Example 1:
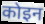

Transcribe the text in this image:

कोइन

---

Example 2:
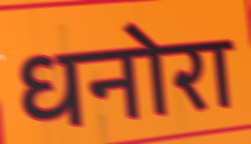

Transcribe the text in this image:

धनोरा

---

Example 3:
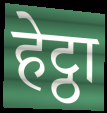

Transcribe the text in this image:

हेट्ठा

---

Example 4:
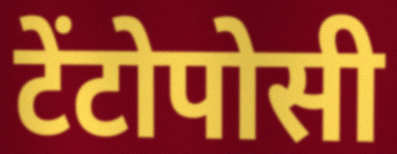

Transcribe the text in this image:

टेंटोपोसी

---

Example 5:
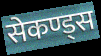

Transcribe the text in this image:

सेकण्ड्स